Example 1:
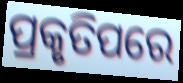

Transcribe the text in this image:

ପ୍ରକୃତିପରେ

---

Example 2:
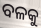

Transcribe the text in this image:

ବଳକୁ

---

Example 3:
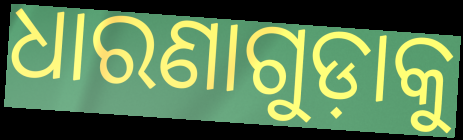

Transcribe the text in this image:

ଧାରଣାଗୁଡ଼ାକୁ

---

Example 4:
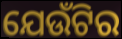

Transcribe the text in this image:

ଯେଉଁଟିର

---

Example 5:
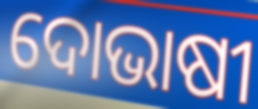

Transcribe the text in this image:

ଦୋଭାଷୀ